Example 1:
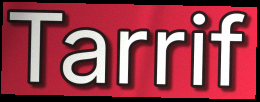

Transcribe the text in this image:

Tarrif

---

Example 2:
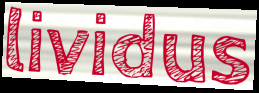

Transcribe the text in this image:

lividus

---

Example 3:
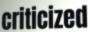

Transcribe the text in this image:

criticized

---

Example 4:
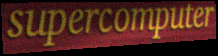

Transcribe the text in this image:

supercomputer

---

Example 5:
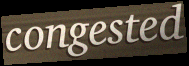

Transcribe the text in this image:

congested